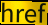
href